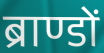
ब्राण्डों